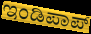
ಇಂಡಿಪಾಪ್